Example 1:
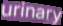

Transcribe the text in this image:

urinary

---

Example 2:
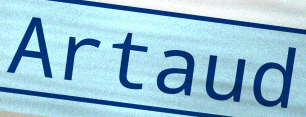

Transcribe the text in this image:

Artaud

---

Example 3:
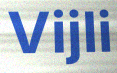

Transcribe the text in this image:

Vijli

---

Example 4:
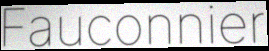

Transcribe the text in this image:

Fauconnier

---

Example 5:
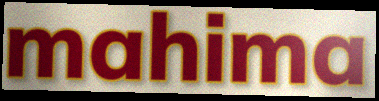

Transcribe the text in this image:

mahima